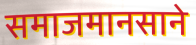
समाजमानसाने